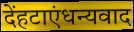
देंहटाएंधन्यवाद